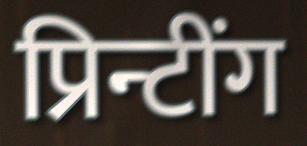
प्रिन्टींग